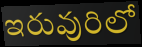
ఇరువురిలో